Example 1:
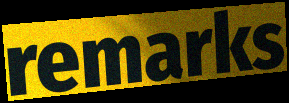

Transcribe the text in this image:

remarks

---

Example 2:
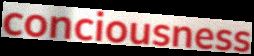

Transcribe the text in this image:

conciousness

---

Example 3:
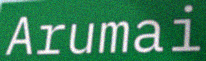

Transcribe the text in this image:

Arumai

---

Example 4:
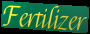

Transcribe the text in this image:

Fertilizer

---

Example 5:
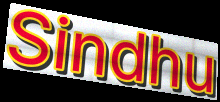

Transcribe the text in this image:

Sindhu